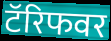
टॅरिफवर